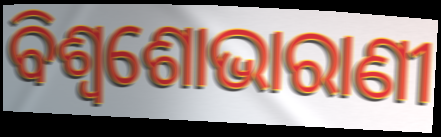
ବିଶ୍ୱଶୋଭାରାଣୀ